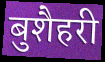
बुशैहरी